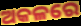
ଅକଳରେ